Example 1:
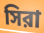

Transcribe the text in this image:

সিরা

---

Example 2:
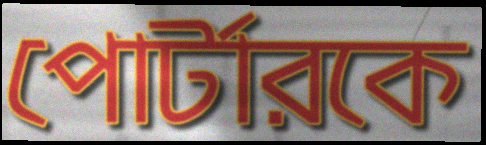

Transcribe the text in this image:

পোর্টারকে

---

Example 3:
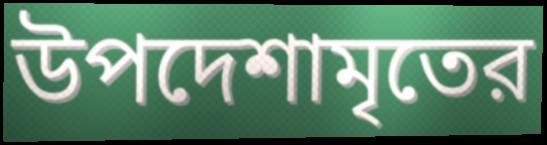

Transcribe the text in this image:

উপদেশামৃতের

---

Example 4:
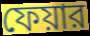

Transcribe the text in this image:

ফেয়ার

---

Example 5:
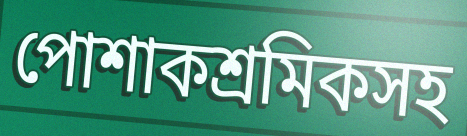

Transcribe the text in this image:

পোশাকশ্রমিকসহ